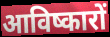
आविष्कारों